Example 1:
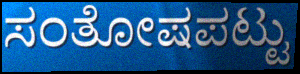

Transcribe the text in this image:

ಸಂತೋಷಪಟ್ಟು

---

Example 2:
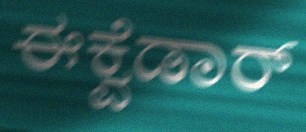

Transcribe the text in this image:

ಈಕ್ವೆಡಾರ್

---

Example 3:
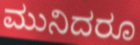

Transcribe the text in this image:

ಮುನಿದರೂ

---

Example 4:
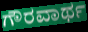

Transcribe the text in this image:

ಗೌರವಾರ್ಥ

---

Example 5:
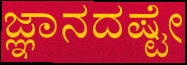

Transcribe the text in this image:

ಜ್ಞಾನದಷ್ಟೇ